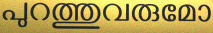
പുറത്തുവരുമോ